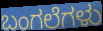
ಬಂಗಲೆಗಳು